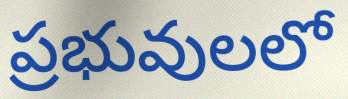
ప్రభువులలో